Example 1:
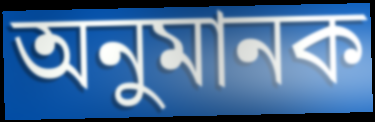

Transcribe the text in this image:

অনুমানক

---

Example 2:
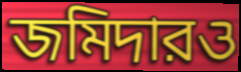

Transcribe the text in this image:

জমিদারও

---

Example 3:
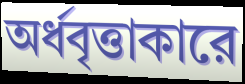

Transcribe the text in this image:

অর্ধবৃত্তাকারে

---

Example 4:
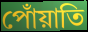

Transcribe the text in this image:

পোঁয়াতি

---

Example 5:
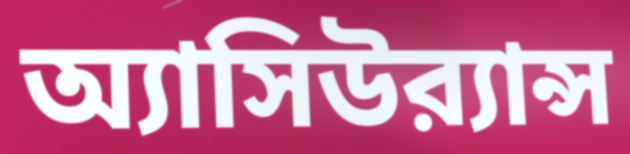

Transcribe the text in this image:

অ্যাসিউর‍্যান্স